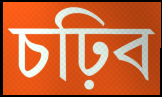
চঢ়িব